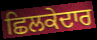
ਛਿਲਕੇਦਾਰ